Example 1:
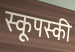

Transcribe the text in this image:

स्कूपस्की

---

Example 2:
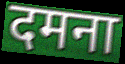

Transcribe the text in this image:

दमना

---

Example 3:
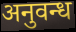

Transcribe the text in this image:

अनुवन्ध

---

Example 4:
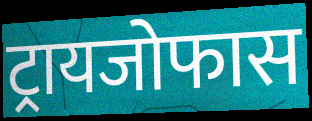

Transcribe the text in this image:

ट्रायजोफास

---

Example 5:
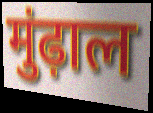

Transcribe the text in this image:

मुंढ़ाल